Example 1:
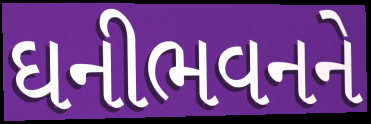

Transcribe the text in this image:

ઘનીભવનને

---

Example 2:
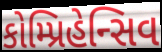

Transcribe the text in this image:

કોમ્પ્રિહેન્સિવ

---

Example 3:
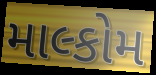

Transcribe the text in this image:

માલ્કોમ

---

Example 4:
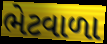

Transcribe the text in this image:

ભેટવાળા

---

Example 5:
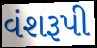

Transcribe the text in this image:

વંશરૂપી